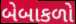
બેબાકળો